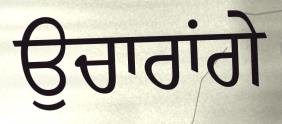
ਉਚਾਰਾਂਗੇ